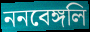
ননবেঙ্গলি